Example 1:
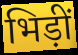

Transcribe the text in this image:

भिड़ीं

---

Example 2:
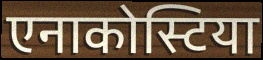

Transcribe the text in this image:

एनाकोस्टिया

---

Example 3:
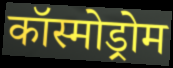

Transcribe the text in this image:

कॉस्मोड्रोम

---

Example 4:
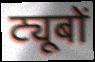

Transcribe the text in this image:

ट्यूबों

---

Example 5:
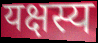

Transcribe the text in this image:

यक्षस्य